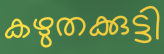
കഴുതക്കുട്ടി